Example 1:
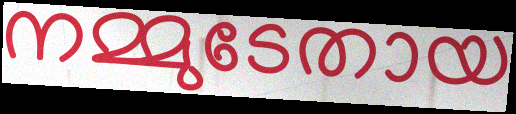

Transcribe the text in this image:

നമ്മുടേതായ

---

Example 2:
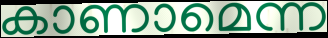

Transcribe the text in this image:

കാണാമെന്ന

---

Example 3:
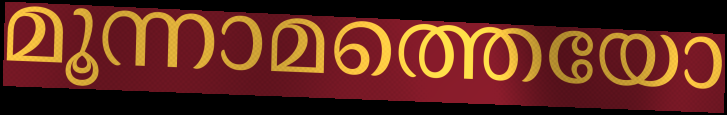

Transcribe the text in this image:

മൂന്നാമത്തെയോ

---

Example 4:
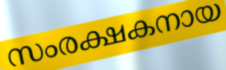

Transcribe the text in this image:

സംരക്ഷകനായ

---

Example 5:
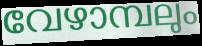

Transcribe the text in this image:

വേഴാമ്പലും